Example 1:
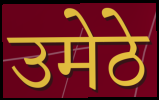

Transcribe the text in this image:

उमेठे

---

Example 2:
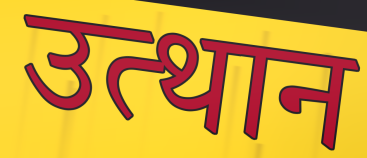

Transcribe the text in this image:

उत्थान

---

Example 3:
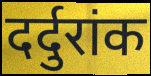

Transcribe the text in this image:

दर्दुरांक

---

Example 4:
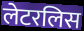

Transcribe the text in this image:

लेटरलिस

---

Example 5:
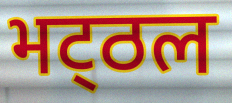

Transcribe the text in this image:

भट्‌ठल